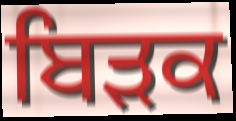
ਬਿੜਕ